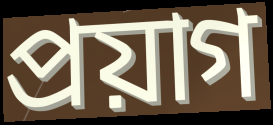
প্রয়াগ